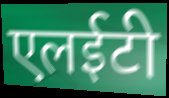
एलईटी